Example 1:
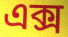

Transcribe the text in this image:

এক্স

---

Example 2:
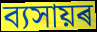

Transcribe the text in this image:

ব্যসায়ৰ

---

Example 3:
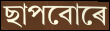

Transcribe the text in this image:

ছাপবোৰে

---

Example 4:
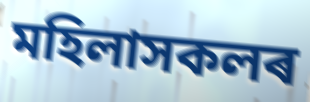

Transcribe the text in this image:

মহিলাসকলৰ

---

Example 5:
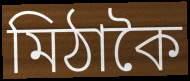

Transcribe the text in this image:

মিঠাকৈ